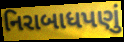
નિરાબાધપણું